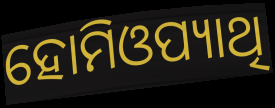
ହୋମିଓପ୍ୟାଥି